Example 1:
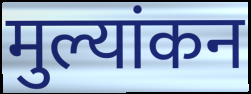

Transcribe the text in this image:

मुल्यांकन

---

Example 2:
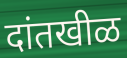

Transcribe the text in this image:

दांतखीळ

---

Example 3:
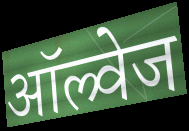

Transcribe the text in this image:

ऑल्वेज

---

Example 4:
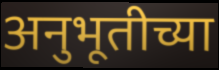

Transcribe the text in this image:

अनुभूतीच्या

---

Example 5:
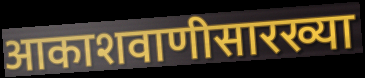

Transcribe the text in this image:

आकाशवाणीसारख्या